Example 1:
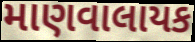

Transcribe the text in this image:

માણવાલાયક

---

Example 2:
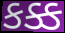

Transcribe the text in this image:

કક્ક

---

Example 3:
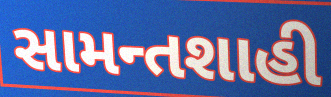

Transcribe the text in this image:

સામન્તશાહી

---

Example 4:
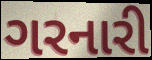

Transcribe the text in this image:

ગરનારી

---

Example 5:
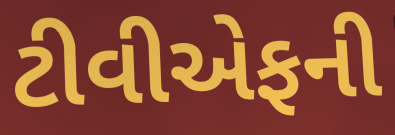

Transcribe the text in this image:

ટીવીએફની